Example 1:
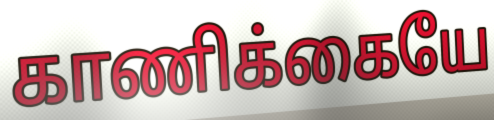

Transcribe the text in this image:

காணிக்கையே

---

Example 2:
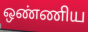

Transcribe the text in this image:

ஒண்ணிய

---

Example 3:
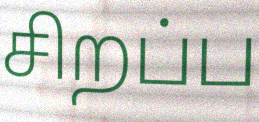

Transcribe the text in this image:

சிறப்ப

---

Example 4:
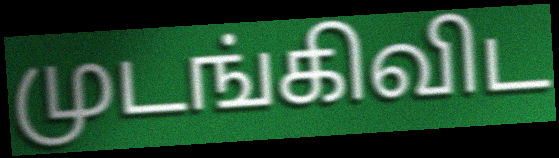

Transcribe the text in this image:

முடங்கிவிட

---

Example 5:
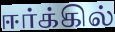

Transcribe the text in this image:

ஈர்க்கில்